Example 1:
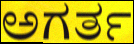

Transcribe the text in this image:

ಅಗರ್ತ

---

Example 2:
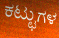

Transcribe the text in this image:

ಕಟ್ಟುಗಳ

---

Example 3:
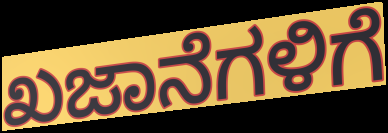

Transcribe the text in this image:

ಖಜಾನೆಗಳಿಗೆ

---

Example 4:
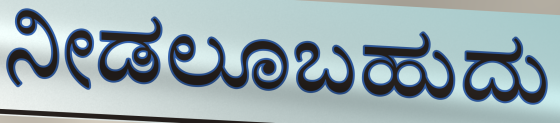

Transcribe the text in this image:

ನೀಡಲೂಬಹುದು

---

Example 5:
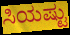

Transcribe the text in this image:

ಸಿಯಷ್ಟು